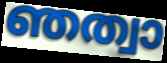
ഞത്വാ